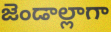
జెండాల్లాగా